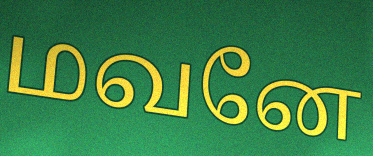
மவனே